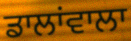
ਡਾਲਾਂਵਾਲਾ